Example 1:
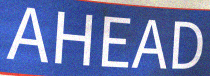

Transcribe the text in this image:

AHEAD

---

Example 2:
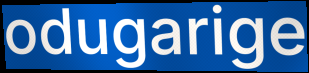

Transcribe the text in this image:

odugarige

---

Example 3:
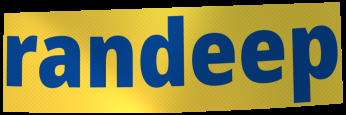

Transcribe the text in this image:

randeep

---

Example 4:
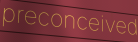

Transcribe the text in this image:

preconceived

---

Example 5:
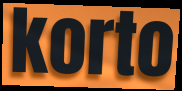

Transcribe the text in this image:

korto